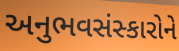
અનુભવસંસ્કારોને